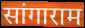
सांगाराम